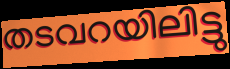
തടവറയിലിട്ടു